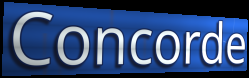
Concorde